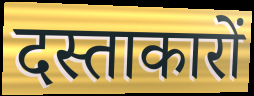
दस्ताकारों